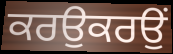
ਕਰਉਕਰਉਂ